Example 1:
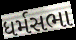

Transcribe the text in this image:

ધર્મસભા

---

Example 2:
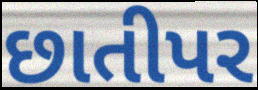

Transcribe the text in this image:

છાતીપર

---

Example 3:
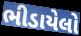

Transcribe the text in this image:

ભીડાયેલો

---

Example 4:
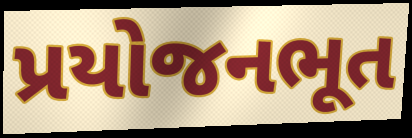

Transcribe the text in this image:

પ્રયોજનભૂત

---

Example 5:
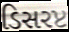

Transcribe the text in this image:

ડિસરપ્ટ